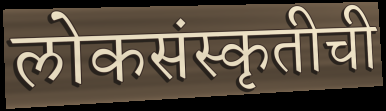
लोकसंस्कृतीची